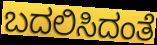
ಬದಲಿಸಿದಂತೆ